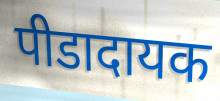
पीडादायक